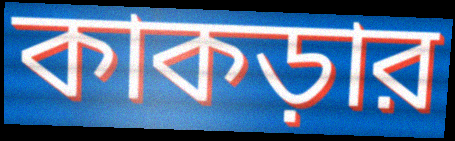
কাকড়ার